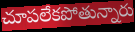
చూపలేకపోతున్నారు